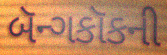
બૅન્ગકૉકની